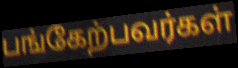
பங்கேற்பவர்கள்